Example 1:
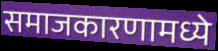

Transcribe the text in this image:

समाजकारणामध्ये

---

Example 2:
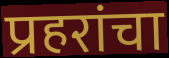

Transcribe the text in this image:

प्रहरांचा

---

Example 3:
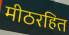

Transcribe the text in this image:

मीठरहित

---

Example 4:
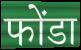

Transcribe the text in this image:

फोंडा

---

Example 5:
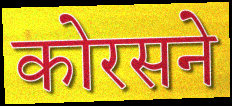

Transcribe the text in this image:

कोरसने